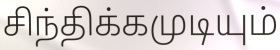
சிந்திக்கமுடியும்